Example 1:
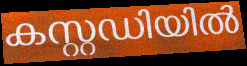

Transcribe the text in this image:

കസ്റ്റഡിയിൽ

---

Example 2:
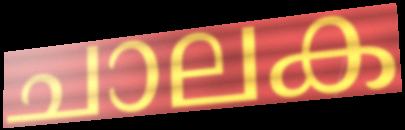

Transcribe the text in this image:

ചാലക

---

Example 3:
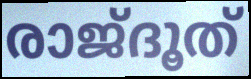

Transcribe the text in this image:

രാജ്ദൂത്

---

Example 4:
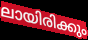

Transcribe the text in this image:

ലായിരിക്കും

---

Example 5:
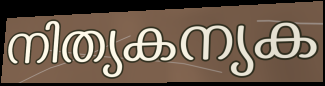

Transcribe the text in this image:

നിത്യകന്യക